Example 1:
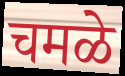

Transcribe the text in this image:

चमळे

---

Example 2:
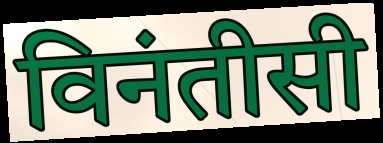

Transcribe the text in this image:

विनंतीसी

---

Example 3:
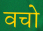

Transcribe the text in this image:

वचो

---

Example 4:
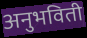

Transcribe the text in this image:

अनुभविती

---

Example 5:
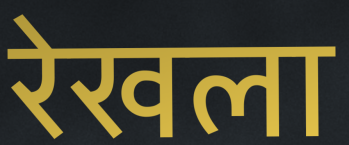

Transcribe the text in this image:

रेखला